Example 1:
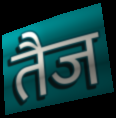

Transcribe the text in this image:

तैज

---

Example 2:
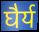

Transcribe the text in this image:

घैर्य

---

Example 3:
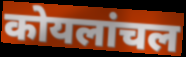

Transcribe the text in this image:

कोयलांचल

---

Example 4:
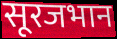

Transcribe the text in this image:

सूरजभान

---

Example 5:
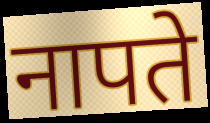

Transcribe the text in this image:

नापते